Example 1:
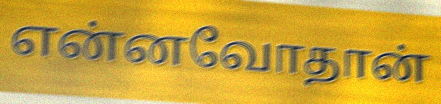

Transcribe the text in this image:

என்னவோதான்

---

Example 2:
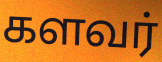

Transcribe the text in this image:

களவர்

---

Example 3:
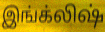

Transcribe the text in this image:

இங்க்லிஷ்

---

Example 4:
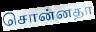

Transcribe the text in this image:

சொன்னதா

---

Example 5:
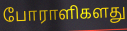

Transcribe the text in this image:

போராளிகளது